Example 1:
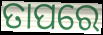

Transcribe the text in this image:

ତାପରେ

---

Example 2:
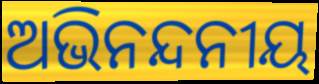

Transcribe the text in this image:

ଅଭିନନ୍ଦନୀୟ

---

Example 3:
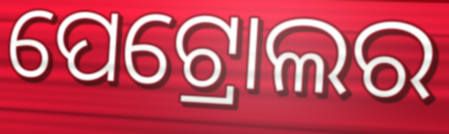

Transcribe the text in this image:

ପେଟ୍ରୋଲର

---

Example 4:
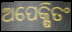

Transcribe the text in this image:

ଅପେକ୍ଷିତଂ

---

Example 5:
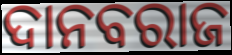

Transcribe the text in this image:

ଦାନବରାଜ